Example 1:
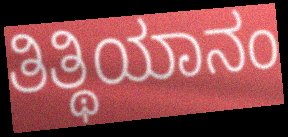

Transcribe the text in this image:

ತಿತ್ಥಿಯಾನಂ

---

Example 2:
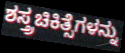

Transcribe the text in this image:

ಶಸ್ತ್ರಚಿಕಿತ್ಸೆಗಳನ್ನು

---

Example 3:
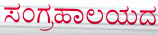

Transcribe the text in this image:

ಸಂಗ್ರಹಾಲಯದ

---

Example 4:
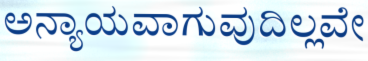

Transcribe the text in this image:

ಅನ್ಯಾಯವಾಗುವುದಿಲ್ಲವೇ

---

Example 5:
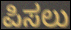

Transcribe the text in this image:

ಪಿಸಲು